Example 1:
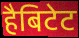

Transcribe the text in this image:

हैबिटेट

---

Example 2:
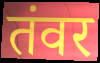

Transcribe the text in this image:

तंवर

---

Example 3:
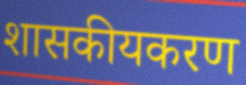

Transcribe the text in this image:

शासकीयकरण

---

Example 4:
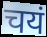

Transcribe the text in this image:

चयं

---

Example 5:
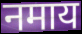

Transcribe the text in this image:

नमाय